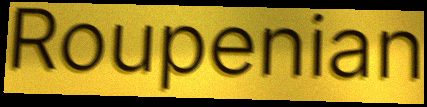
Roupenian